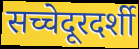
सच्चेदूरदर्शी